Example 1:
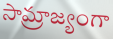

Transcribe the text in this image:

సామ్రాజ్యంగా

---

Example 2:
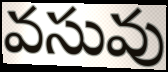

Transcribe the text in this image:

వసువు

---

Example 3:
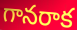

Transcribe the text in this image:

గానరాక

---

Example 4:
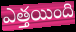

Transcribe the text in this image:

ఎత్తయింది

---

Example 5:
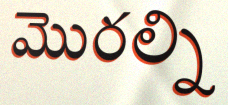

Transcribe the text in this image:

మొరల్ని